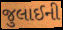
જુલાઈની